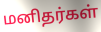
மனிதர்கள்